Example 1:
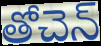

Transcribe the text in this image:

తోచెన్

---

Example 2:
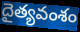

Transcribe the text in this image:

దైత్యవంశం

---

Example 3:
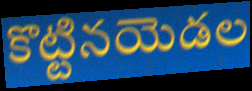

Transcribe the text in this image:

కొట్టినయెడల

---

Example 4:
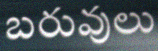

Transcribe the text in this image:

బరువులు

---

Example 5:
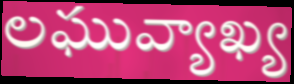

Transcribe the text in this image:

లఘువ్యాఖ్య